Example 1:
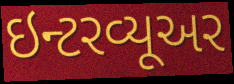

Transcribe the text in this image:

ઇન્ટરવ્યૂઅર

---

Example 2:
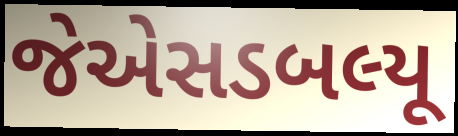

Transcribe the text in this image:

જેએસડબલ્યૂ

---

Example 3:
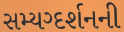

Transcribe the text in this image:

સમ્યગ્દર્શનની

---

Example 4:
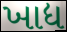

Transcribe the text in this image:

ખાદ્ય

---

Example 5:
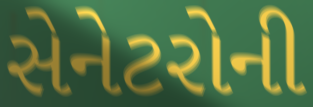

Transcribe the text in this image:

સેનેટરોની